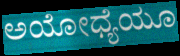
ಅಯೋಧ್ಯೆಯೂ